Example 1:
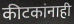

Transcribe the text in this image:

कीटकांनाही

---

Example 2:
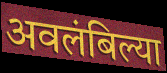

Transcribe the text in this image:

अवलंबिल्या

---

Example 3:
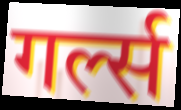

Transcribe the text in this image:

गर्ल्स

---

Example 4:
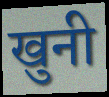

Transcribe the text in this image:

खुनी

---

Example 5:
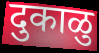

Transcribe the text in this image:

दुकाळु